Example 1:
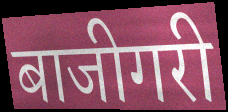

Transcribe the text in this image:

बाजीगरी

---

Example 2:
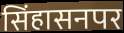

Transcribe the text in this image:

सिंहासनपर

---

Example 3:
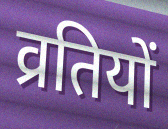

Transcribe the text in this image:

व्रतियों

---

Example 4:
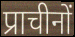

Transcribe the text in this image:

प्राचीनों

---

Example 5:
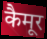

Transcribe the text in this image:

कैमूर